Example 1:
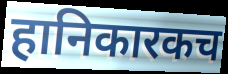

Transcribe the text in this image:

हानिकारकच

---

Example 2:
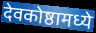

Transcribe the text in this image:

देवकोष्ठामध्ये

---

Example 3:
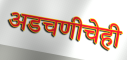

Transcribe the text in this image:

अडचणीचेही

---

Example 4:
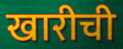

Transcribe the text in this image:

खारीची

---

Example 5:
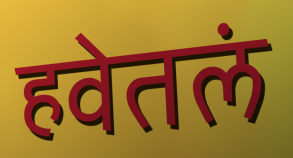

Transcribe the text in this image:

हवेतलं